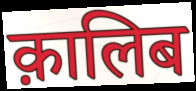
क़ालिब